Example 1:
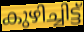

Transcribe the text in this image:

കുഴിച്ചിട്ട്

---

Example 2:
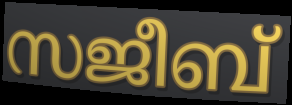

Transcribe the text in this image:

സജീബ്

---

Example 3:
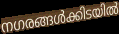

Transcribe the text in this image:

നഗരങ്ങൾക്കിടയിൽ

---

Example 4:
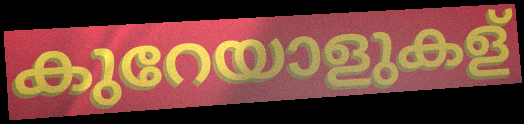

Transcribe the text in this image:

കുറേയാളുകള്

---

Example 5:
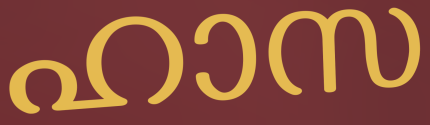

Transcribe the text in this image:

ഹാസ